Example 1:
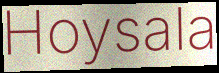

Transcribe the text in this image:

Hoysala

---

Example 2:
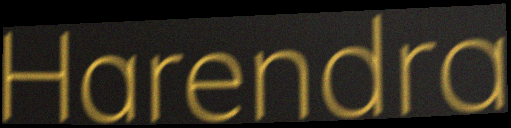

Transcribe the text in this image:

Harendra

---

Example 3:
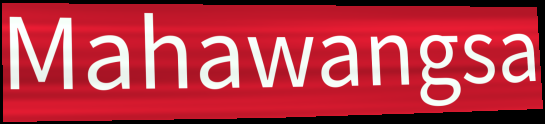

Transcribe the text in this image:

Mahawangsa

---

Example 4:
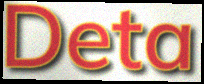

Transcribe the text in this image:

Deta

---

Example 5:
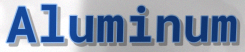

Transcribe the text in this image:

Aluminum